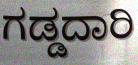
ಗಡ್ಡದಾರಿ